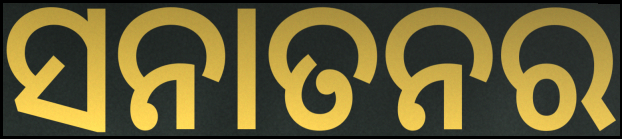
ସନାତନର